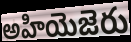
అహియెజెరు